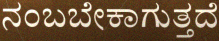
ನಂಬಬೇಕಾಗುತ್ತದೆ